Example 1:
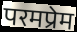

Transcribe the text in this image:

परमप्रेम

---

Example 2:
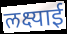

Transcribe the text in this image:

लक्ष्याई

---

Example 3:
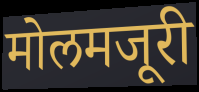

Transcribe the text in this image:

मोलमजूरी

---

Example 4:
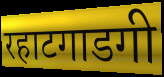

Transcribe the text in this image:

रहाटगाडगी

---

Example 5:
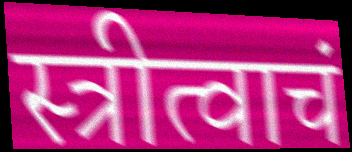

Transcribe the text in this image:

स्त्रीत्वाचं